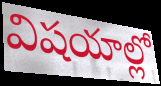
విషయాల్లో